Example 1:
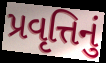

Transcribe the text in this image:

પ્રવૃત્તિનું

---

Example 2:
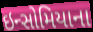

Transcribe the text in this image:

ઇન્સોમિયાના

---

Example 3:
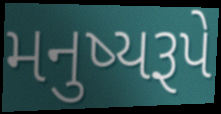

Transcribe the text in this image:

મનુષ્યરૂપે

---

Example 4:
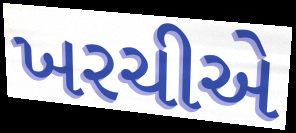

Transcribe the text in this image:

ખરચીએ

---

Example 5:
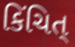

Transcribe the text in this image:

કિંચિત્